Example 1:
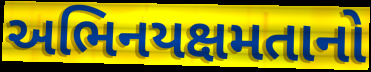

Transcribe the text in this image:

અભિનયક્ષમતાનો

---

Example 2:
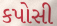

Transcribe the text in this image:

કપોસી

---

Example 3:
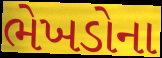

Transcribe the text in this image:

ભેખડોના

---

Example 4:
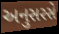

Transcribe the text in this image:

અનુસરસે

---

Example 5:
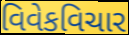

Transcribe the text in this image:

વિવેકવિચાર